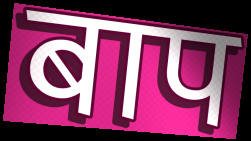
बाप